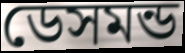
ডেসমন্ড